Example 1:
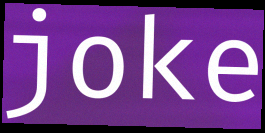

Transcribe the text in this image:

joke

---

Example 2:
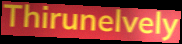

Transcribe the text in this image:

Thirunelvely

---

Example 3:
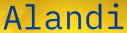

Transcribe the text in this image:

Alandi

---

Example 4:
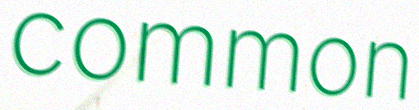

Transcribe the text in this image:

common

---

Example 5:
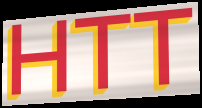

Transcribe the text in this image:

HTT